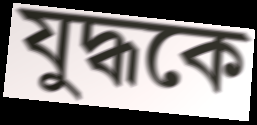
যুদ্ধকে